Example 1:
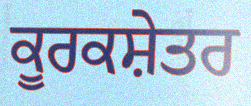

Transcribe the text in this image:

ਕੂਰਕਸ਼ੇਤਰ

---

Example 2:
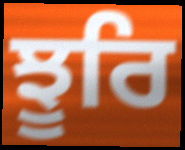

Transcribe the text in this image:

ਝੂਰਿ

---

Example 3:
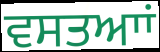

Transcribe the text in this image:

ਵਸਤਆਾਂ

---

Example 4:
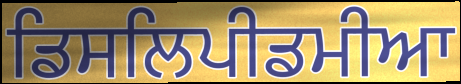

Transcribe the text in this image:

ਡਿਸਲਿਪੀਡਮੀਆ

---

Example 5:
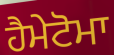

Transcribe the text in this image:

ਹੈਮੇਟੋਮਾ